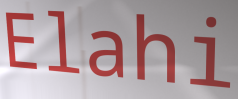
Elahi